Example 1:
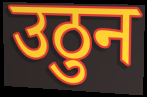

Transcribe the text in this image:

उठुन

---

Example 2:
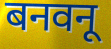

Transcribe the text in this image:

बनवनू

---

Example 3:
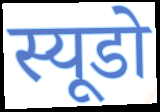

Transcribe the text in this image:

स्यूडो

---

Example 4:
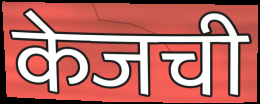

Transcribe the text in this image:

केजची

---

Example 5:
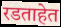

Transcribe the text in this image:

रडताहेत